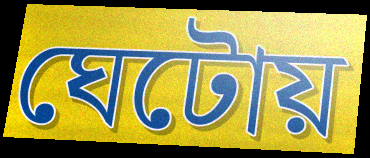
ঘেটোয়